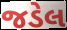
જડેલ